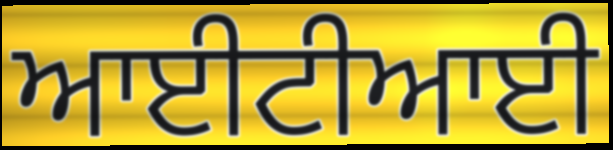
ਆਈਟੀਆਈ